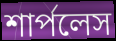
শার্পলেস